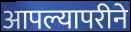
आपल्यापरीने